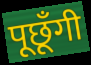
पूछूँगी